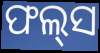
ଫଲ୍‌ସ